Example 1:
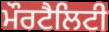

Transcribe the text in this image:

ਮੌਰਟੈਲਿਟੀ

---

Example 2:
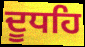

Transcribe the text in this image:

ਦੂਧਹਿ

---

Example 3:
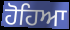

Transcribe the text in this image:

ਹੋਹਿਆ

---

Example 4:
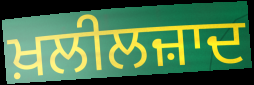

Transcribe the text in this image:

ਖ਼ਲੀਲਜ਼ਾਦ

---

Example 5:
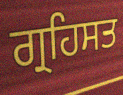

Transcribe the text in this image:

ਗ੍ਰਹਿਸਤ